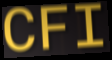
CFI